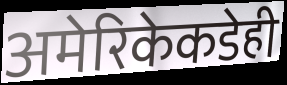
अमेरिकेकडेही